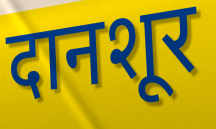
दानशूर